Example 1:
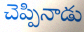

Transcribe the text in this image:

చెప్పినాడు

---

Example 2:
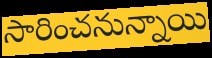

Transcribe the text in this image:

సారించనున్నాయి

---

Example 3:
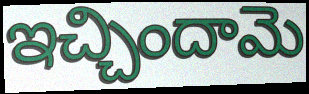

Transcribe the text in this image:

ఇచ్చిందామె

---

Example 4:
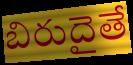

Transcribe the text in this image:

బిరుదైతే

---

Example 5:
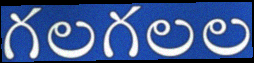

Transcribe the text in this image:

గలగలల